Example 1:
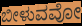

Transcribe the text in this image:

ಬೀಳುವವೋ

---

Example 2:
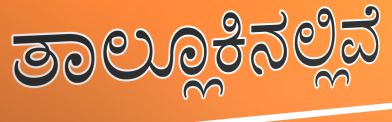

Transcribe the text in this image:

ತಾಲ್ಲೂಕಿನಲ್ಲಿವೆ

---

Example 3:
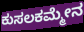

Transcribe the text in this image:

ಕುಸಲಕಮ್ಮೇನ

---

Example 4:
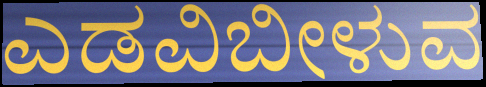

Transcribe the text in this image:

ಎಡವಿಬೀಳುವ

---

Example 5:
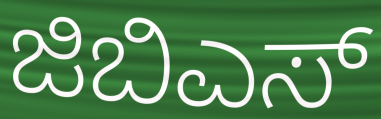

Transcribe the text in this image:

ಜಿಬಿಎಸ್